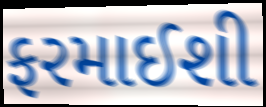
ફરમાઈશી